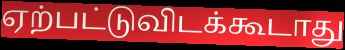
ஏற்பட்டுவிடக்கூடாது